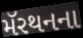
મૅરથનના